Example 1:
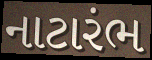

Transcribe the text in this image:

નાટારંભ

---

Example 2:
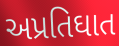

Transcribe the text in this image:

અપ્રતિઘાત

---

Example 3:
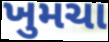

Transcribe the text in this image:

ખુમચા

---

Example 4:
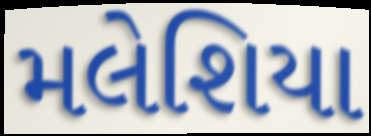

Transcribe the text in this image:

મલેશિયા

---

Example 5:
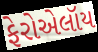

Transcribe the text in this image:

ફેરોએલૉય